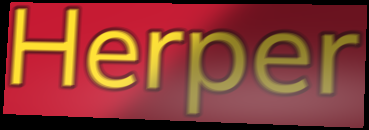
Herper